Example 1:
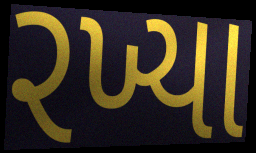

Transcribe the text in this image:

રખ્યા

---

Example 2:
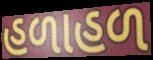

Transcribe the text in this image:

હળાહળ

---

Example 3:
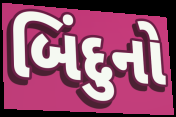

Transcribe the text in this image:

બિંદુનો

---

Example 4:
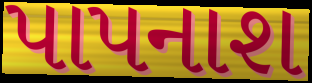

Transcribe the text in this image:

પાપનાશ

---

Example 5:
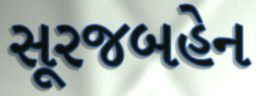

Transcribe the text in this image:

સૂરજબહેન